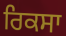
ਰਿਕਸਾ